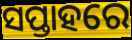
ସପ୍ତାହରେ